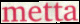
metta